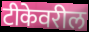
टीकेवरील